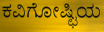
ಕವಿಗೋಷ್ಟಿಯ